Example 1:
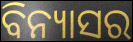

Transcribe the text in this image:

ବିନ୍ୟାସର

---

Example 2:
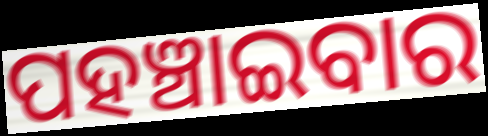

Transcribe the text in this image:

ପହଞ୍ଚାଇବାର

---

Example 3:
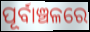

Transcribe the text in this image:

ପୂର୍ବାଞ୍ଚଳରେ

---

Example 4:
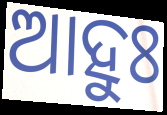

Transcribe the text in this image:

ଆହୁଃ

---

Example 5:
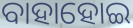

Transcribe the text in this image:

ବାହାହୋଇ